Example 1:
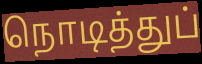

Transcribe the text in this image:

நொடித்துப்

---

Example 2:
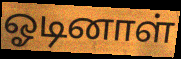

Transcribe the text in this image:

ஓடினாள்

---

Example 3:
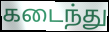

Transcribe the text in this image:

கடைந்து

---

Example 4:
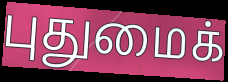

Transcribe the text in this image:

புதுமைக்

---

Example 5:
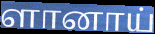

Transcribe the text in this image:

ளானாய்